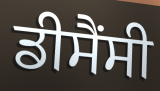
ਡੀਸੈਂਸੀ